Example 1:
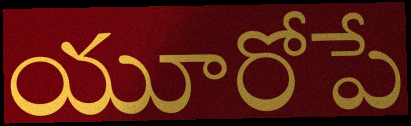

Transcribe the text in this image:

యూరోపే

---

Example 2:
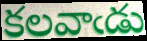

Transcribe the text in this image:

కలవాఁడు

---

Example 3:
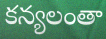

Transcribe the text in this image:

కన్యలంతా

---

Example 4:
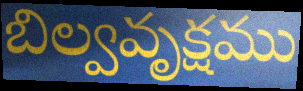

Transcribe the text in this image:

బిల్వవృక్షము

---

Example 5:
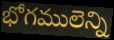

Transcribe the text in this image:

భోగములెన్ని